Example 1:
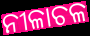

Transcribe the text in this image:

ନୀଳାଚଳ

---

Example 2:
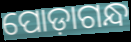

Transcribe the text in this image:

ପୋଡ଼ାଗନ୍ଧ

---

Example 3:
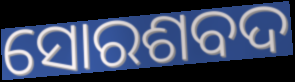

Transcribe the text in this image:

ସୋରଶବଦ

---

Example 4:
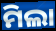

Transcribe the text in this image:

ମିଲା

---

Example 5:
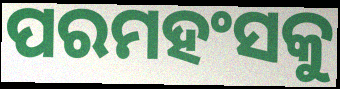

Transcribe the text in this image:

ପରମହଂସକୁ